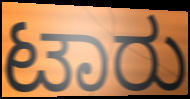
ಟಾರು